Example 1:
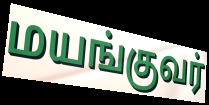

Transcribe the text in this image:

மயங்குவர்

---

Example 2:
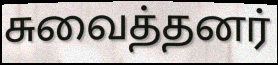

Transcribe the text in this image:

சுவைத்தனர்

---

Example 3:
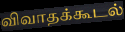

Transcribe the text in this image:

விவாதக்கூடல்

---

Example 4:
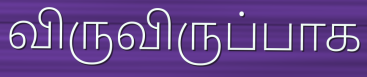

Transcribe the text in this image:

விருவிருப்பாக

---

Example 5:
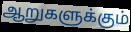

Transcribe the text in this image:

ஆறுகளுக்கும்